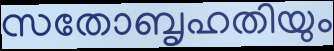
സതോബൃഹതിയും